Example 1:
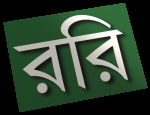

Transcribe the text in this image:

ররি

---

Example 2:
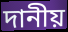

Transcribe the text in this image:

দানীয়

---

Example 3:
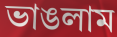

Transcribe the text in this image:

ভাঙলাম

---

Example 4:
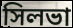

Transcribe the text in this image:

সিলভা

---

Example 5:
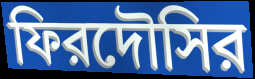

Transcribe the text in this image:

ফিরদৌসির